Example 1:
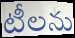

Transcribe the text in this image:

టీలను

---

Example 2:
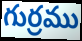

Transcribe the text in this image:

గుర్రము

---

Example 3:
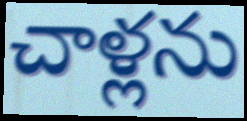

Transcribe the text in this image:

చాళ్లను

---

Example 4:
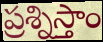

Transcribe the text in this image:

ప్రశ్నిస్తాం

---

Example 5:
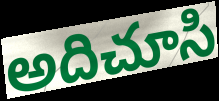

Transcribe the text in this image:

అదిచూసి